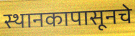
स्थानकापासूनचे